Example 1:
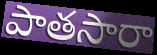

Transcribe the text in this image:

పాతసారా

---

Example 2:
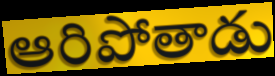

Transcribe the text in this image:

ఆరిపోతాడు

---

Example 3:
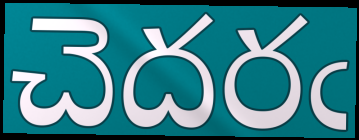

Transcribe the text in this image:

చెదరఁ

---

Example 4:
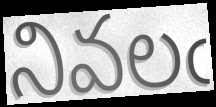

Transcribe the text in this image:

నివలఁ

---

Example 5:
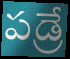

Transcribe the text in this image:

పడ్రే